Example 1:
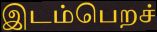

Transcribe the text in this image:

இடம்பெறச்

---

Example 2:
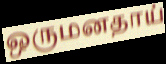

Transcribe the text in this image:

ஒருமனதாய்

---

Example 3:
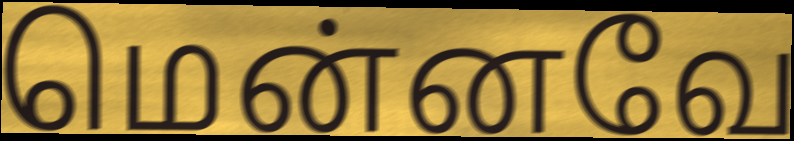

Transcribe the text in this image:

மென்னவே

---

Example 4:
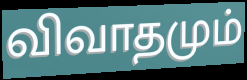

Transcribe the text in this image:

விவாதமும்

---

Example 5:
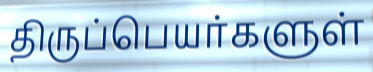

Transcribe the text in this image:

திருப்பெயர்களுள்